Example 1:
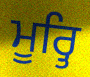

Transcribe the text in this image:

ਮੂਰ੍ਤਿ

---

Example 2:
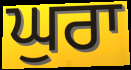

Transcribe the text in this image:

ਘੁਰਾ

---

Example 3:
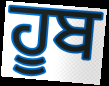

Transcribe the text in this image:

ਹੂਬ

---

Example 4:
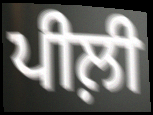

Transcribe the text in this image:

ਪੀਲ਼ੀ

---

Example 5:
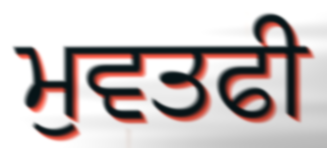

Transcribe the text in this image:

ਮੁਵਤਫੀ